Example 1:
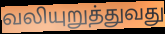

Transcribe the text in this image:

வலியுறுத்துவது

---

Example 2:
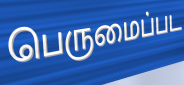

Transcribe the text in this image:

பெருமைப்பட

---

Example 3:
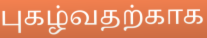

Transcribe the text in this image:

புகழ்வதற்காக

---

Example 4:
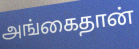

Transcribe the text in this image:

அங்கைதான்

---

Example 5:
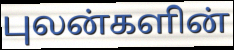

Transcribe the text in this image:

புலன்களின்